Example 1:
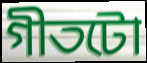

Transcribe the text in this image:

গীতটো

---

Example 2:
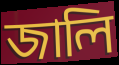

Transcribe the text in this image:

জালি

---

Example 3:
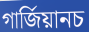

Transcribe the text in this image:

গাৰ্জিয়ানচ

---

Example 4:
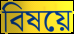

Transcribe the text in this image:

বিষয়ে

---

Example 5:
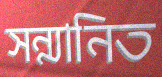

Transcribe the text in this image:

সন্মানিত